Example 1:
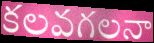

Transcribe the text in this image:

కలవగలనా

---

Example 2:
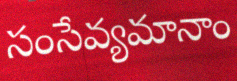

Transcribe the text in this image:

సంసేవ్యమానాం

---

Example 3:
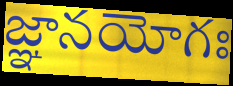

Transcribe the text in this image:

జ్ఞానయోగః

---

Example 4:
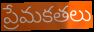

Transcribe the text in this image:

ప్రేమకతలు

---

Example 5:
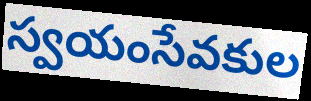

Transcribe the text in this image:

స్వయంసేవకుల